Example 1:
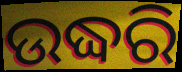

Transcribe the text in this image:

ଉଦ୍ଧରି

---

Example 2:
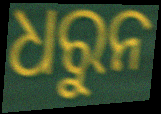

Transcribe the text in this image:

ଧରୁନ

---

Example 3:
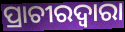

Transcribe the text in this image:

ପ୍ରାଚୀରଦ୍ୱାରା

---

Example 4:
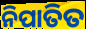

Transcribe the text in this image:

ନିପାତିତ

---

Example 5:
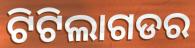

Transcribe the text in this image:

ଟିଟିଲାଗଡର